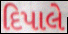
દિપાલે